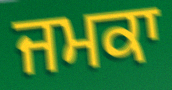
ਜਮਕਾ